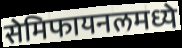
सेमिफायनलमध्ये